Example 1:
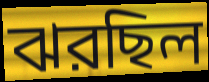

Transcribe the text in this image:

ঝরছিল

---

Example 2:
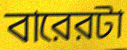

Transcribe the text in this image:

বারেরটা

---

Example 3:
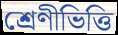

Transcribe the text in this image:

শ্রেণীভিত্তি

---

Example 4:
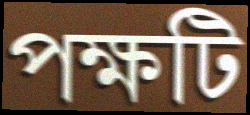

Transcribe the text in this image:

পক্ষটি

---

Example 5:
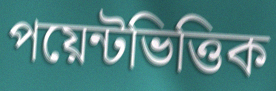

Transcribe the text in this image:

পয়েন্টভিত্তিক